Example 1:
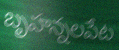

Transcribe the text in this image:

బృహన్నలపేట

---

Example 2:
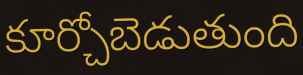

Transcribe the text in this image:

కూర్చోబెడుతుంది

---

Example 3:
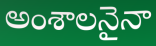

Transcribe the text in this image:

అంశాలనైనా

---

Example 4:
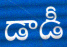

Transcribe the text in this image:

డాడీ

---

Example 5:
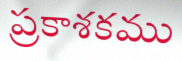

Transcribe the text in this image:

ప్రకాశకము